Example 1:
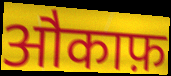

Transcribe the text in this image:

औकाफ़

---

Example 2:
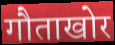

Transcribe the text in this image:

गौताखोर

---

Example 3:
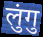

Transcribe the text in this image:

लुंगु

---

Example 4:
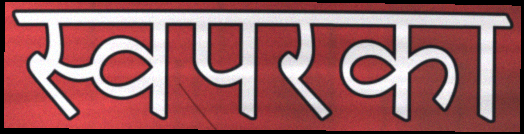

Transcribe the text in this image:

स्वपरका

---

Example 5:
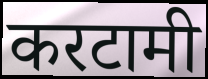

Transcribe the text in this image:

करटामी